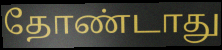
தோண்டாது